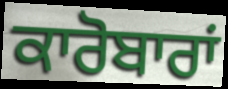
ਕਾਰੋਬਾਰਾਂ